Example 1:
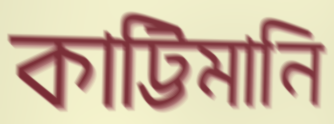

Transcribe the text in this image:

কাট্টিমানি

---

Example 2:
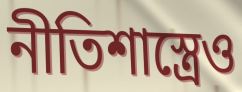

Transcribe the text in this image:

নীতিশাস্ত্রেও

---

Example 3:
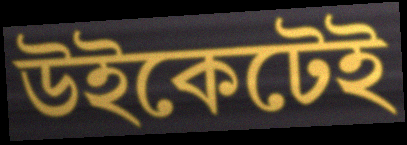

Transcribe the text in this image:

উইকেটেই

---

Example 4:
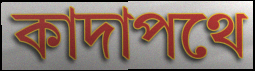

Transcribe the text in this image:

কাদাপথে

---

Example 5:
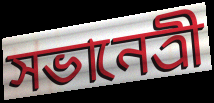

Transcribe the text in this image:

সভানেত্রী